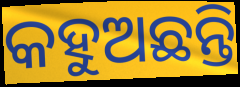
କହୁଅଛନ୍ତି